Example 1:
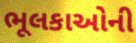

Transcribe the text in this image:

ભૂલકાઓની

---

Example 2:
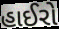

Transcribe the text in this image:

હાઈરો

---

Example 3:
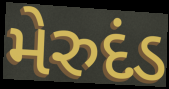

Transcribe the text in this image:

મેરુદંડ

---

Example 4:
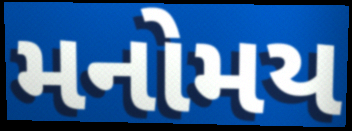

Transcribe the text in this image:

મનોમય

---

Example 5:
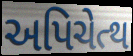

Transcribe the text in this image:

અપિચેત્થ